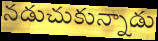
నడుచుకున్నాడు